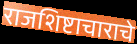
राजशिष्टाचाराचे